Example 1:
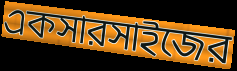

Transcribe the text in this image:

একসারসাইজের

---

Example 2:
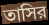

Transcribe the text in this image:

তাসির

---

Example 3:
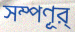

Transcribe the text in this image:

সম্পণূর্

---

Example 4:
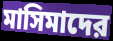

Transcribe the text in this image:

মাসিমাদের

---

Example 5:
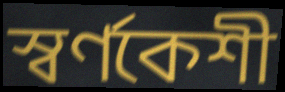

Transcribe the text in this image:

স্বর্ণকেশী